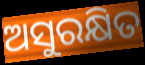
ଅସୁରକ୍ଷିତ